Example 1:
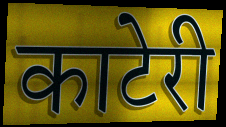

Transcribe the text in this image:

काटेरी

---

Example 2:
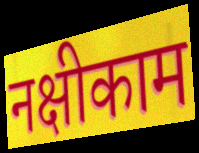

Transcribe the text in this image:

नक्षीकाम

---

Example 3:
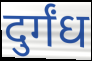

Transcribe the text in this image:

दुर्गंध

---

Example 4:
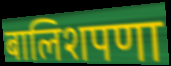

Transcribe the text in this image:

बालिशपणा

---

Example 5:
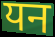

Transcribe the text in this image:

यन